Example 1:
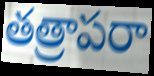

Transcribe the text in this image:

తత్రాపరా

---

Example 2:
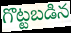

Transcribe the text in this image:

గొట్టబడిన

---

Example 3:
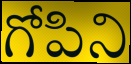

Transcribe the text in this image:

గోపిని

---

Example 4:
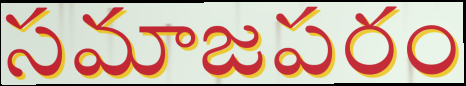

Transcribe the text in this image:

సమాజపరం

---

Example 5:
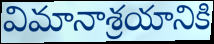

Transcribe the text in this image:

విమానాశ్రయానికి